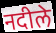
नदीले